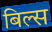
बिल्स